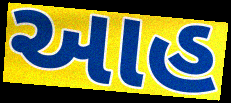
આહ